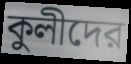
কুলীদের